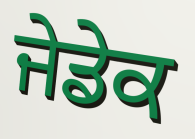
ਜੇਡੇਕ